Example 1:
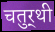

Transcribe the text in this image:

चतुर्थी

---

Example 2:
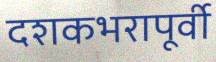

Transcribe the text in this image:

दशकभरापूर्वी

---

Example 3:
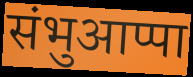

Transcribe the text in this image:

संभुआप्पा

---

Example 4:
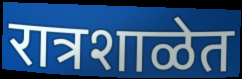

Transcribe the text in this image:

रात्रशाळेत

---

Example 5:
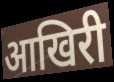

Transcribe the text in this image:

आखिरी